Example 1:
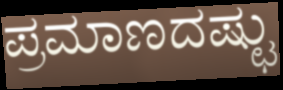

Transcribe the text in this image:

ಪ್ರಮಾಣದಷ್ಟು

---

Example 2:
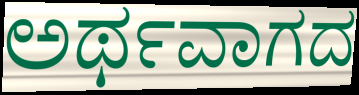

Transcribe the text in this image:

ಅರ್ಥವಾಗದ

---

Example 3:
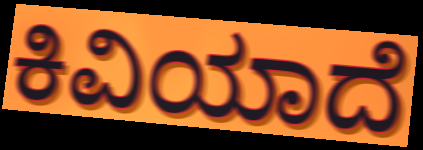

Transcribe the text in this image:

ಕಿವಿಯಾದೆ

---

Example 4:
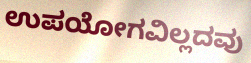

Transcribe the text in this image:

ಉಪಯೋಗವಿಲ್ಲದವು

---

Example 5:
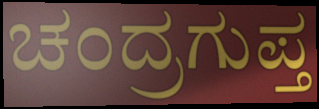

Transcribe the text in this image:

ಚಂದ್ರಗುಪ್ತ